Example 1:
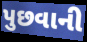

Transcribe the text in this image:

પુછવાની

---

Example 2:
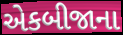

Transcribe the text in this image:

એકબીજાના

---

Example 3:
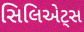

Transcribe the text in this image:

સિલિએટ્સ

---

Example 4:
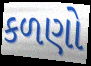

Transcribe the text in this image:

કળણો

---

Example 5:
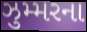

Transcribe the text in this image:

ઝુમ્મરના